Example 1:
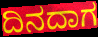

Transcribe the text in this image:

ದಿನದಾಗ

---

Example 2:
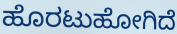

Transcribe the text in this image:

ಹೊರಟುಹೋಗಿದೆ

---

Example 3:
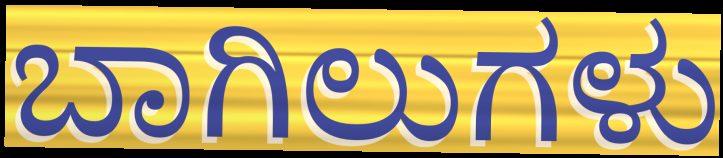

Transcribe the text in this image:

ಬಾಗಿಲುಗಳು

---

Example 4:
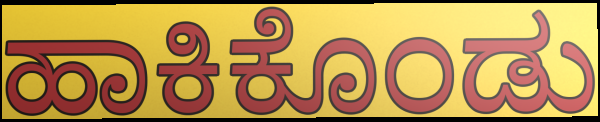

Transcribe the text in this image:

ಹಾಕಿಕೊಂಡು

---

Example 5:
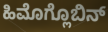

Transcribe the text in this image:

ಹಿಮೊಗ್ಲೊಬಿನ್